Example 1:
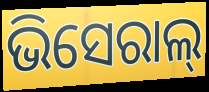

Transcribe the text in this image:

ଭିସେରାଲ୍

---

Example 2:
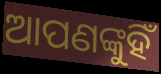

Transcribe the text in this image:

ଆପଣଙ୍କୁହିଁ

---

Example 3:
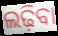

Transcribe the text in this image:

ଲଢ଼ିବା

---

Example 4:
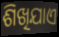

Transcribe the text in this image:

ଶିଖିଯାଏ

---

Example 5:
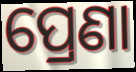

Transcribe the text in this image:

ପ୍ରେଣା